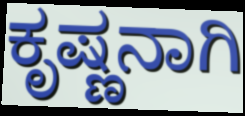
ಕೃಷ್ಣನಾಗಿ